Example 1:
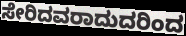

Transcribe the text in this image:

ಸೇರಿದವರಾದುದರಿಂದ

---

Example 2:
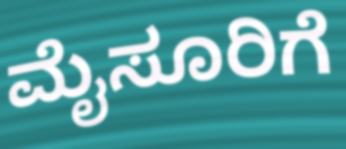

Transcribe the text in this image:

ಮೈಸೂರಿಗೆ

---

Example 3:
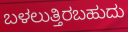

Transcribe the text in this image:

ಬಳಲುತ್ತಿರಬಹುದು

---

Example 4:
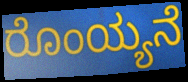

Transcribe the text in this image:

ರೊಂಯ್ಯನೆ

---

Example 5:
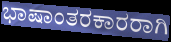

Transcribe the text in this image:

ಭಾಷಾಂತರಕಾರರಾಗಿ